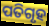
ପତିଗୃହ